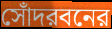
সোঁদরবনের